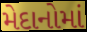
મેદાનોમાં